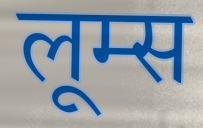
लूम्स